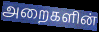
அறைகளின்